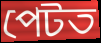
পেটত